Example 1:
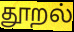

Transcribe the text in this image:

தூறல்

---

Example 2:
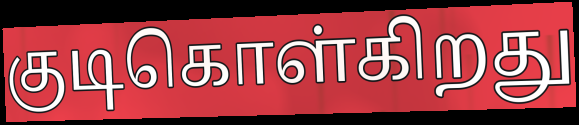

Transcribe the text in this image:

குடிகொள்கிறது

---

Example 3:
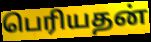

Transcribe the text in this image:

பெரியதன்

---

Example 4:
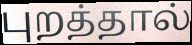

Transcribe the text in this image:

புறத்தால்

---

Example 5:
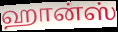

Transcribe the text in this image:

ஹான்ஸ்